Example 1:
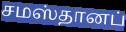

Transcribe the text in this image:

சமஸ்தானப்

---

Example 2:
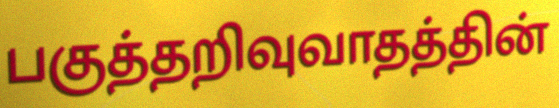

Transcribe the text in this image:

பகுத்தறிவுவாதத்தின்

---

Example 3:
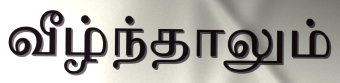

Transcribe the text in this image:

வீழ்ந்தாலும்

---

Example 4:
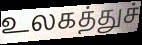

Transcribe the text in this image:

உலகத்துச்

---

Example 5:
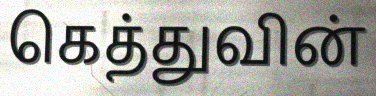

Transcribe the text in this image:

கெத்துவின்